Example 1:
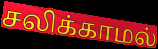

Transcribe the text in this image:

சலிக்காமல்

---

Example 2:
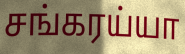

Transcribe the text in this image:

சங்கரய்யா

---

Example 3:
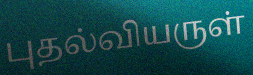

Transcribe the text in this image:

புதல்வியருள்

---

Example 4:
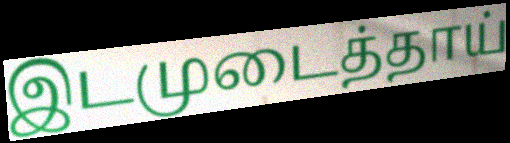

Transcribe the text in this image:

இடமுடைத்தாய்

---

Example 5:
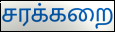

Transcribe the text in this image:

சரக்கறை